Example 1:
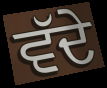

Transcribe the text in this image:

ਵੱਦੇ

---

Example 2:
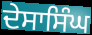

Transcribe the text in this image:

ਦੇਸਾਸਿੰਘ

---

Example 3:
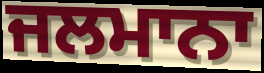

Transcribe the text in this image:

ਜਲਮਾਨਾ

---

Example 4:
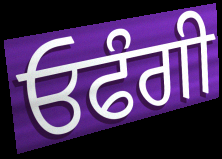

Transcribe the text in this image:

ਓਫੰਗੀ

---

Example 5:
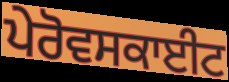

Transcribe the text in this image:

ਪੇਰੋਵਸਕਾਈਟ